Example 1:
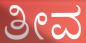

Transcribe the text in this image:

ತೀವ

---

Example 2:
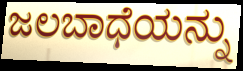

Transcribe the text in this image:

ಜಲಬಾಧೆಯನ್ನು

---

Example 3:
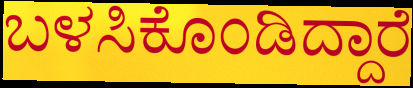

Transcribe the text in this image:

ಬಳಸಿಕೊಂಡಿದ್ದಾರೆ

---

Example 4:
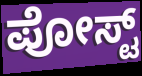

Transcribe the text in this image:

ಪೋಸ್ಟ್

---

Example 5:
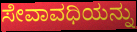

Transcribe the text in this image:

ಸೇವಾವಧಿಯನ್ನು